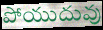
పోయుదువు